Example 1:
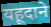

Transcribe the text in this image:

यहूदाने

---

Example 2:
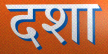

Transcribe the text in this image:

दशा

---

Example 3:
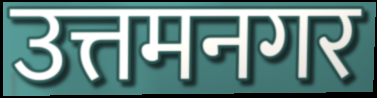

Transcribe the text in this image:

उत्तमनगर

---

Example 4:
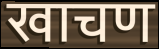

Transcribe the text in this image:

खाचण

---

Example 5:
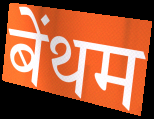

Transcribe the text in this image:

बेंथम